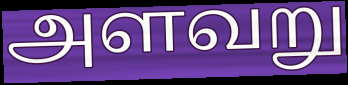
அளவறு